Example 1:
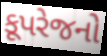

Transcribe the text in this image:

કૂપરેજનો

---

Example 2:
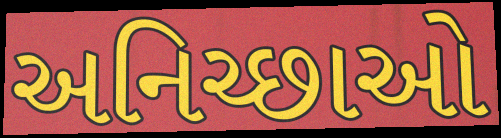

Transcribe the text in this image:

અનિચ્છાઓ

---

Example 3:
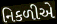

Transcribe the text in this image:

નિકળીએ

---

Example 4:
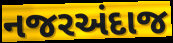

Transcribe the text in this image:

નજરઅંદાજ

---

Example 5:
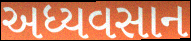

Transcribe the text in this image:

અધ્યવસાન